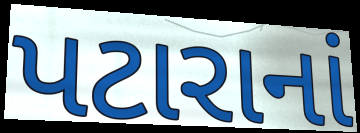
પટારાનાં